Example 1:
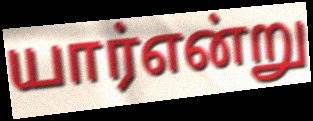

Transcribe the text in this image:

யார்என்று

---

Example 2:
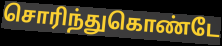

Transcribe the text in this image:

சொரிந்துகொண்டே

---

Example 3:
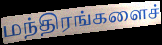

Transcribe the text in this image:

மந்திரங்களைச்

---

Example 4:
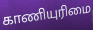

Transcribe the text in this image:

காணியுரிமை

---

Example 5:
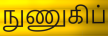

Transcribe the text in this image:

நுணுகிப்